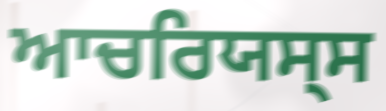
ਆਚਰਿਯਸ੍ਸ